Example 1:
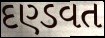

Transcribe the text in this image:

દણ્ડવત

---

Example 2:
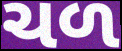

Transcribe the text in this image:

ચળ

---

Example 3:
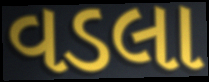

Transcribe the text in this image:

વડલા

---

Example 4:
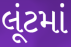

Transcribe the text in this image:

લૂંટમાં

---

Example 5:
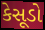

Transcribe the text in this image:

કેસૂડો